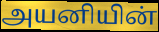
அயனியின்